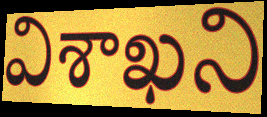
విశాఖని